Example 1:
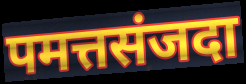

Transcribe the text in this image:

पमत्तसंजदा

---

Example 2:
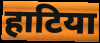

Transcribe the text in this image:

हाटिया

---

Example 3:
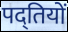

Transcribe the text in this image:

पद्तियों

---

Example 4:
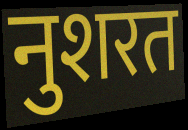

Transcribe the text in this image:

नुशरत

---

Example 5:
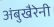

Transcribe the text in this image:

अंबुखैरेनी